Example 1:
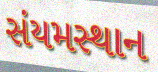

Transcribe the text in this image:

સંયમસ્થાન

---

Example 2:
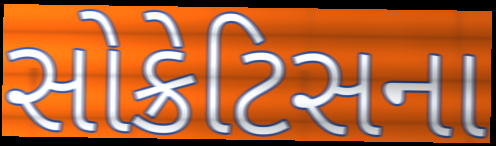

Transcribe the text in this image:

સોક્રેટિસના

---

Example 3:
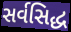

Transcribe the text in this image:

સર્વસિદ્ધ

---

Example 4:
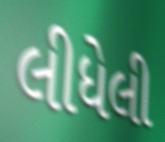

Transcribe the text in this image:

લીધેલી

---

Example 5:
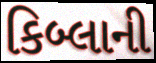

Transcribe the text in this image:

કિબ્લાની